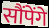
सौंपेंगे